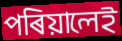
পৰিয়ালেই